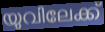
യുവിലേക്ക്